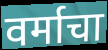
वर्माचा